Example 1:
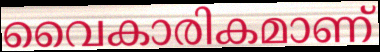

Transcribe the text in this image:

വൈകാരികമാണ്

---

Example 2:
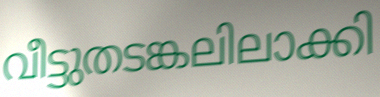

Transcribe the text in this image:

വീട്ടുതടങ്കലിലാക്കി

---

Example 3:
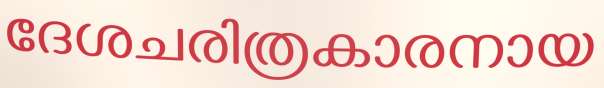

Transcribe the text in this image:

ദേശചരിത്രകാരനായ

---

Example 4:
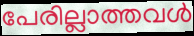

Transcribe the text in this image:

പേരില്ലാത്തവൾ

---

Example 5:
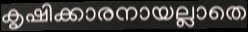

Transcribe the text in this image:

കൃഷിക്കാരനായല്ലാതെ